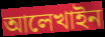
আলেখাইন